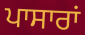
ਪਾਸਾਰਾਂ